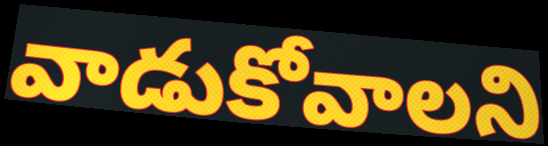
వాడుకోవాలని